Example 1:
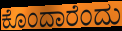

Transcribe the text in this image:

ಕೊಂದಾರೆಂದು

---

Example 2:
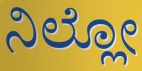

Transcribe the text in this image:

ನಿಲ್ಲೋ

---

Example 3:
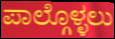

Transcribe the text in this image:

ಪಾಲ್ಗೊಳ್ಳಲು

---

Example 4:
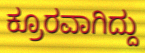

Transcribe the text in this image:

ಕ್ರೂರವಾಗಿದ್ದು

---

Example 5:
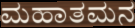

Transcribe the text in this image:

ಮಹಾತಮನ